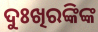
ଦୁଃଖିରଙ୍କିଙ୍କ